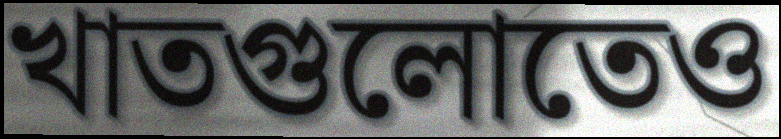
খাতগুলোতেও